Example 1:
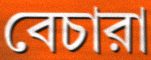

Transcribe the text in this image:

বেচারা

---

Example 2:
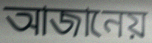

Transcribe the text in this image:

আজানেয়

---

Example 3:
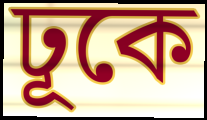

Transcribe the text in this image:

ঢূকে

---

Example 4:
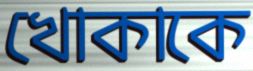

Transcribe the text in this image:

খোকাকে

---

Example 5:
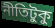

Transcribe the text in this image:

নীতিটুকু